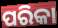
ପରିକା